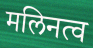
मलिनत्व